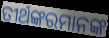
ତୀର୍ଥଙ୍କରମାନଙ୍କ